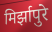
मिर्झापुरे